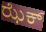
ಝೆಕ್